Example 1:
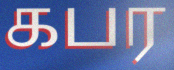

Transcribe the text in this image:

கபர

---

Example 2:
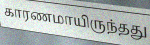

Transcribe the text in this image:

காரணமாயிருந்தது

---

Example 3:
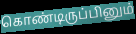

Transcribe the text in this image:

கொண்டிருப்பினும்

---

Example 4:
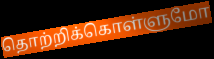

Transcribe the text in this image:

தொற்றிக்கொள்ளுமோ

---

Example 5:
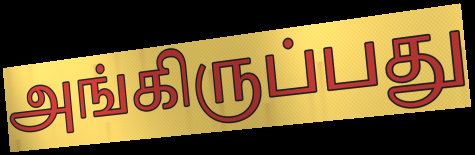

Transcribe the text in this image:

அங்கிருப்பது